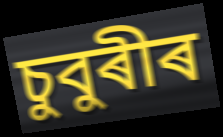
চুবুৰীৰ